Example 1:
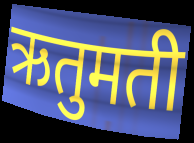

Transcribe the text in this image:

ऋतुमती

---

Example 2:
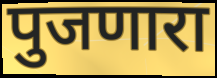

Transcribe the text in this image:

पुजणारा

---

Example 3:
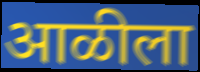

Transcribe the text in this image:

आळीला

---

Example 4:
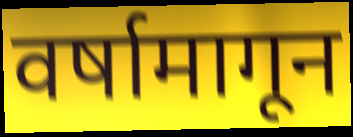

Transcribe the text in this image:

वर्षामागून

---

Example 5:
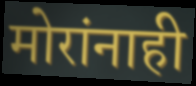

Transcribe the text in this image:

मोरांनाही